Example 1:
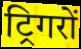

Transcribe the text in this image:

ट्रिगरों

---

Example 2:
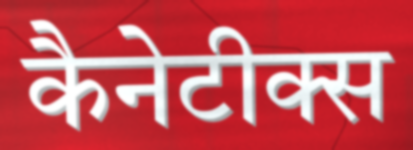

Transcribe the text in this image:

कैनेटीक्स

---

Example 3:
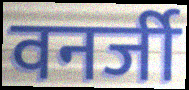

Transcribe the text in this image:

वनर्जी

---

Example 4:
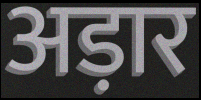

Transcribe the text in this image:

अड़ार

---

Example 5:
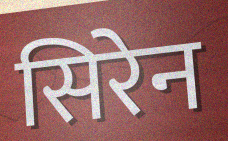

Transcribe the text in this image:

सिरेन